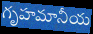
గృహమానీయ